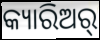
କ୍ୟାରିଅର୍